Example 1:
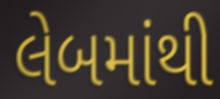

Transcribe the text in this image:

લેબમાંથી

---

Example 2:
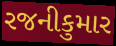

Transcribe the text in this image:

રજનીકુમાર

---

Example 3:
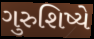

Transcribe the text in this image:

ગુરુશિષ્યે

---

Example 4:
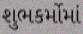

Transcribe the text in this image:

શુભકર્મોમાં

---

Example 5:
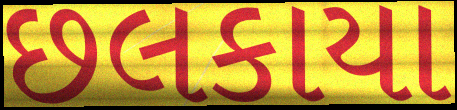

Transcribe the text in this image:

છલકાયા